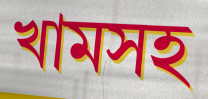
খামসহ